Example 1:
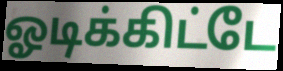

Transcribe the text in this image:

ஓடிக்கிட்டே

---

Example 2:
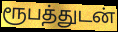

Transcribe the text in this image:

ரூபத்துடன்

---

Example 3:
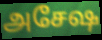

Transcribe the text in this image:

அசேஷ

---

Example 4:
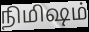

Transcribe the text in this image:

நிமிஷம்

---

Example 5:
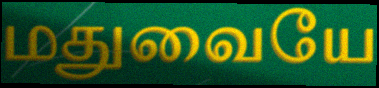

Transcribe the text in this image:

மதுவையே